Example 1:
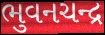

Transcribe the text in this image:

ભુવનચન્દ્ર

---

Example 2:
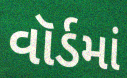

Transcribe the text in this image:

વૉર્ડમાં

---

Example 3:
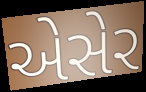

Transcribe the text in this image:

એસેર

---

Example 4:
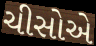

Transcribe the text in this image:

ચીસોએ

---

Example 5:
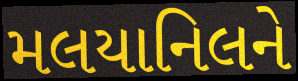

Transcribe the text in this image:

મલયાનિલને